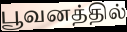
பூவனத்தில்